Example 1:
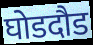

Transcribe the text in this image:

घोडदौड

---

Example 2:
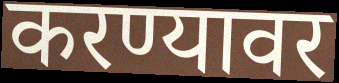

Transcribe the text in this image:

करण्यावर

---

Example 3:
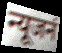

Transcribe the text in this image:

न्यूजनं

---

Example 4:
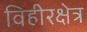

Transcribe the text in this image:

विहीरक्षेत्र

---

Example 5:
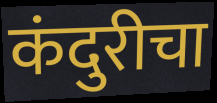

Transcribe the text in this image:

कंदुरीचा